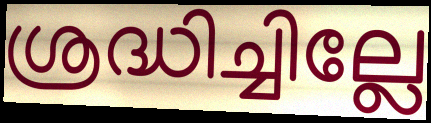
ശ്രദ്ധിച്ചില്ലേ